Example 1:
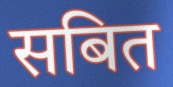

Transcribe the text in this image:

सबित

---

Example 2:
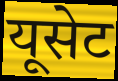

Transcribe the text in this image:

यूसेट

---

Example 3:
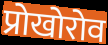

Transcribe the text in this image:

प्रोखोरोव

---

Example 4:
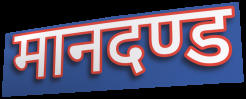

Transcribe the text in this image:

मानदण्ड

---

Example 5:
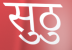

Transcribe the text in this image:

सुठु